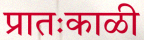
प्रातःकाळी